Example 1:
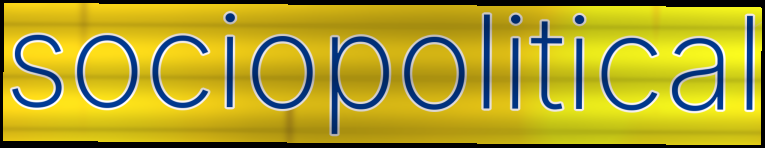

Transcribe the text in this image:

sociopolitical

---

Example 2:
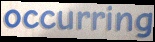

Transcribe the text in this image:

occurring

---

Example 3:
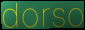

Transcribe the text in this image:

dorso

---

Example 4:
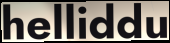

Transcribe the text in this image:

helliddu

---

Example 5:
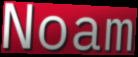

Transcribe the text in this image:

Noam